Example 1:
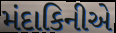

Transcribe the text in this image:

મંદાકિનીએ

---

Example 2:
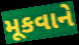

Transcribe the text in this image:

મૂકવાને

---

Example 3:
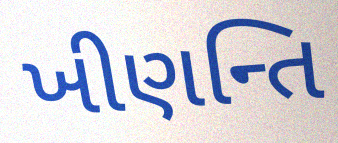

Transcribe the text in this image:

ખીણન્તિ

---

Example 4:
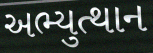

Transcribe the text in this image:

અભ્યુત્થાન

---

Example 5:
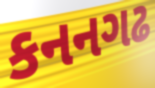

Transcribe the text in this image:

કનનગઢ